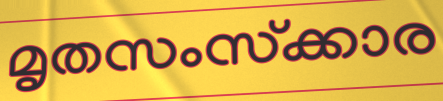
മൃതസംസ്‌ക്കാര